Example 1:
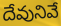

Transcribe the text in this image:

దేవునివే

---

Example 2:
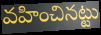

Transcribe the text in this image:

వహించినట్టు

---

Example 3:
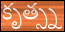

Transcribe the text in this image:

కృత్స్న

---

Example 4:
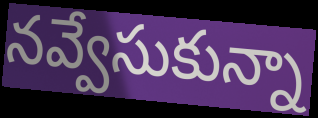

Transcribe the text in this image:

నవ్వేసుకున్నా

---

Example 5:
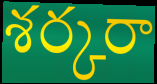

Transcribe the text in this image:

శర్కరా